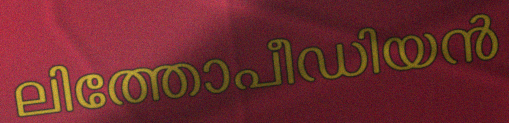
ലിത്തോപീഡിയൻ